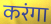
करंगा